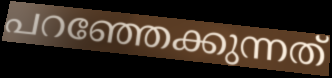
പറഞ്ഞേക്കുന്നത്